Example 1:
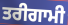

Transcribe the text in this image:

ਤਰੀਗਾਮੀ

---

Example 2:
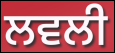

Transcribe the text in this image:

ਲਵਲੀ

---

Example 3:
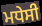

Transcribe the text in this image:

ਮਧੇਸੀ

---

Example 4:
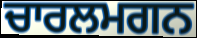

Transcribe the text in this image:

ਚਾਰਲਮਗਨ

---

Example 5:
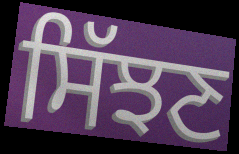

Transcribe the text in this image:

ਸਿੱਝਣ